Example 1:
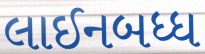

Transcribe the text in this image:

લાઈનબધ્ધ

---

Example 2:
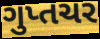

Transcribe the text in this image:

ગુપ્તચર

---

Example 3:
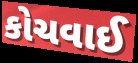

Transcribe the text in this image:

કોચવાઈ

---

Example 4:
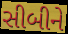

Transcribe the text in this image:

સીબીને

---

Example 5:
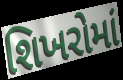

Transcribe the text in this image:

શિખરોમાં